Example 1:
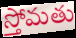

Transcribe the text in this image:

స్తోమతు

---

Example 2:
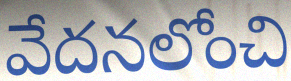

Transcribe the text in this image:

వేదనలోంచి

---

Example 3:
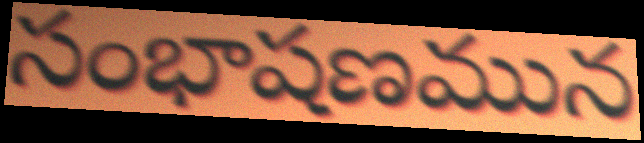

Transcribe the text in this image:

సంభాషణమున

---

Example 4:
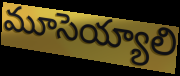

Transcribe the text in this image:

మూసెయ్యాలి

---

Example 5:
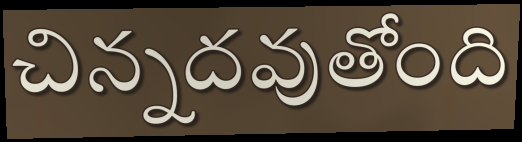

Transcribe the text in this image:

చిన్నదవుతోంది